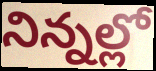
నిన్నల్లో